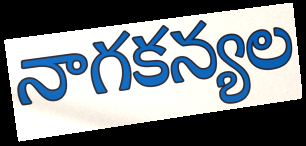
నాగకన్యల